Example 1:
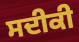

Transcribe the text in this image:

ਸਦੀਕੀ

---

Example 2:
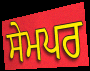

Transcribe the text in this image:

ਸੇਮਪਰ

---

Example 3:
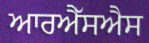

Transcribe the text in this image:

ਆਰਐੱਸਐਸ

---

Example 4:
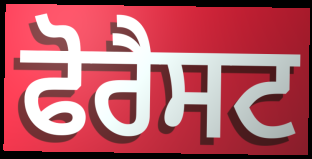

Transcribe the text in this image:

ਫੋਰੈਸਟ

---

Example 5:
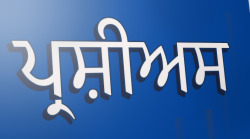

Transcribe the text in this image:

ਪ੍ਰਸ਼ੀਅਸ